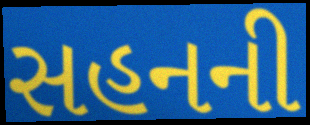
સહનની